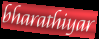
bharathiyar